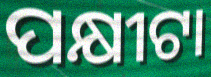
ପକ୍ଷୀଟା